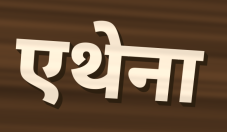
एथेना